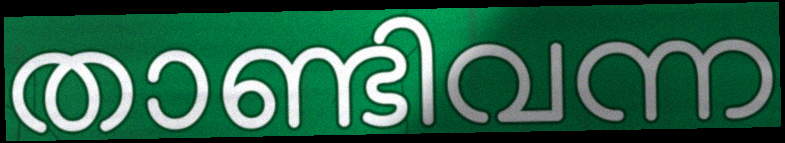
താണ്ടിവന്ന